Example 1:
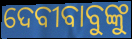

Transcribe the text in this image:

ଦେବୀବାବୁଙ୍କୁ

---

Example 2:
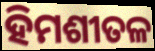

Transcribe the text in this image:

ହିମଶୀତଳ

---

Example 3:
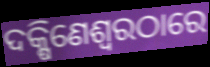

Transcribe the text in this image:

ଦକ୍ଷିଣେଶ୍ୱରଠାରେ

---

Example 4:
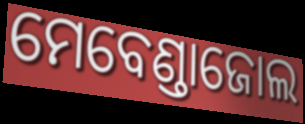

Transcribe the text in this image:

ମେବେଣ୍ଡାଜୋଲ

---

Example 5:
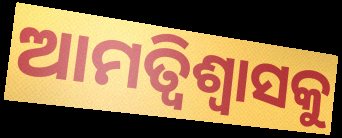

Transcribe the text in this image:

ଆମତ୍ବିଶ୍ୱାସକୁ